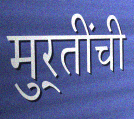
मुर्तींची